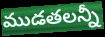
ముడతలన్నీ